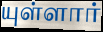
யுள்ளார்